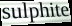
sulphite